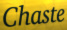
Chaste